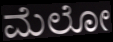
ಮೆಲೋ